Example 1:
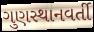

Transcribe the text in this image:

ગુણસ્થાનવર્તી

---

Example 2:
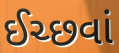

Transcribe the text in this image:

ઈચ્છવાં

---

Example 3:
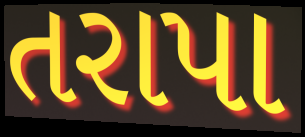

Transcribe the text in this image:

તરાપા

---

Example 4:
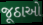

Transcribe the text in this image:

જૂઠાઓ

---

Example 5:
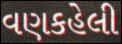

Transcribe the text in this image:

વણકહેલી